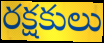
రక్షకులు